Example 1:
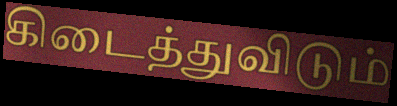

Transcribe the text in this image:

கிடைத்துவிடும்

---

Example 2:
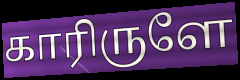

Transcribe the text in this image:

காரிருளே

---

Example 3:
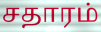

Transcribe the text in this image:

சதாரம்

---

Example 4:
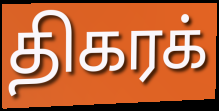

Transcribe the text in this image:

திகரக்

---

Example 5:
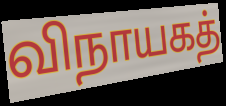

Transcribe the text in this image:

விநாயகத்